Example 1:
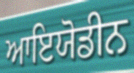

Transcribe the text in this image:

ਆਇਯੋਡੀਨ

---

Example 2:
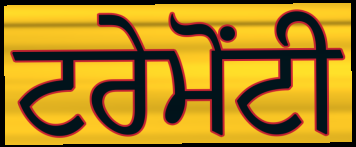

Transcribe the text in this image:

ਟਰੇਮੋਂਟੀ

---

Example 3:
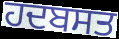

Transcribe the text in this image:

ਹਦਬਸਤ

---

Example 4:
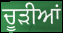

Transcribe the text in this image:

ਚੂੜੀਆਂ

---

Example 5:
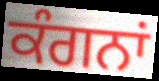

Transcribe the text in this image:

ਕੰਗਨਾਂ